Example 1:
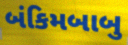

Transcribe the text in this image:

બંકિમબાબુ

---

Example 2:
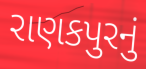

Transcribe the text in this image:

રાણકપુરનું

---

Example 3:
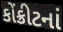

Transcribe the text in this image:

કોંક્રીટનાં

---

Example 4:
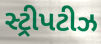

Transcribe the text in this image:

સ્ટ્રીપટીઝ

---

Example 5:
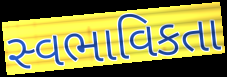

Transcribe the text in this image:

સ્વભાવિકતા